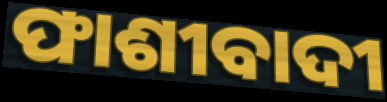
ଫାଶୀବାଦୀ